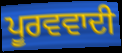
ਪੂਰਵਵਾਦੀ